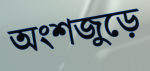
অংশজুড়ে